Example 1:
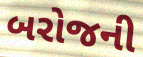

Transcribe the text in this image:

બરોજની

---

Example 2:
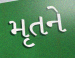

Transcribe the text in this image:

મૃતને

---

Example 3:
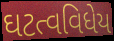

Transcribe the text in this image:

ઘટત્વવિધેય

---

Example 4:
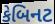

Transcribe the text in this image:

કેબિનટ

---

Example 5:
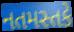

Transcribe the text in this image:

નતમસ્તકે